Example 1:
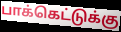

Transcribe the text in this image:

பாக்கெட்டுக்கு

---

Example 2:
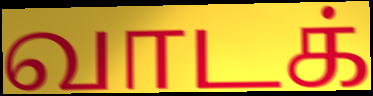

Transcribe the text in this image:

வாடக்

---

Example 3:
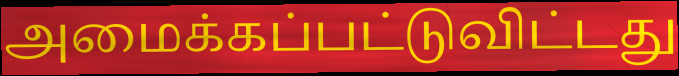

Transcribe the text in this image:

அமைக்கப்பட்டுவிட்டது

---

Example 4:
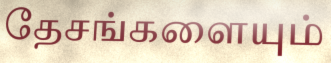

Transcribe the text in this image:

தேசங்களையும்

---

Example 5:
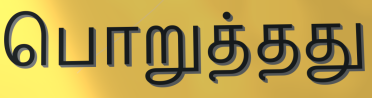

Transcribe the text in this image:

பொறுத்தது